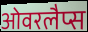
ओवरलैप्स